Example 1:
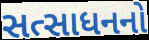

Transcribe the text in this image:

સત્સાધનનો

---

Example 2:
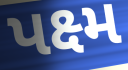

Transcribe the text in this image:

પક્ષ્મ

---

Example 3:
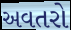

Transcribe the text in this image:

અવતરો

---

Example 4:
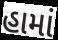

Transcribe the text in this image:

હામાં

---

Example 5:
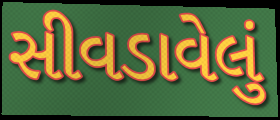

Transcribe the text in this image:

સીવડાવેલું